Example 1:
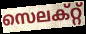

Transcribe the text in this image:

സെലക്റ്റ്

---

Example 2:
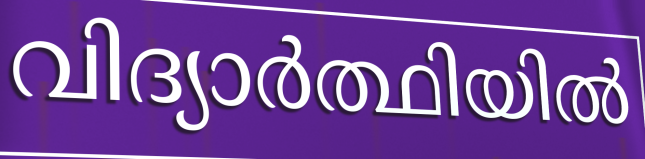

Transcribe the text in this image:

വിദ്യാർത്ഥിയിൽ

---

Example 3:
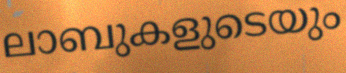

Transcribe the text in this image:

ലാബുകളുടെയും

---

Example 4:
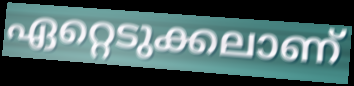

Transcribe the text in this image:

ഏറ്റെടുക്കലാണ്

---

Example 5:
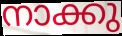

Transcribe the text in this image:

നാക്കു